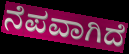
ನೆಪವಾಗಿದೆ